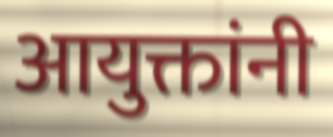
आयुक्तांनी